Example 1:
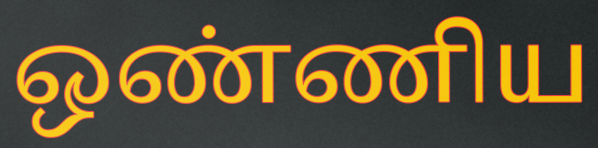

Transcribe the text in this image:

ஒண்ணிய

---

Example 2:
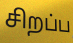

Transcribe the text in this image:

சிறப்ப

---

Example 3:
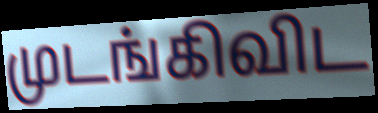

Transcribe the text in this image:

முடங்கிவிட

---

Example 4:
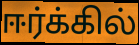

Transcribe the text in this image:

ஈர்க்கில்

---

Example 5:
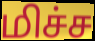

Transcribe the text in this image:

மிச்ச